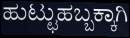
ಹುಟ್ಟುಹಬ್ಬಕ್ಕಾಗಿ